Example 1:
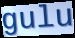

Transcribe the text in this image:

gulu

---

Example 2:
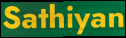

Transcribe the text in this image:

Sathiyan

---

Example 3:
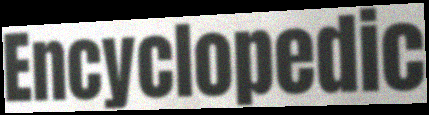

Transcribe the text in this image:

Encyclopedic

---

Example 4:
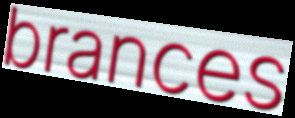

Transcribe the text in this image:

brances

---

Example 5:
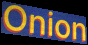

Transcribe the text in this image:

Onion